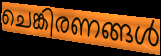
ചെങ്കിരണങ്ങൾ